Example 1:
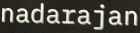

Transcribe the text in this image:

nadarajan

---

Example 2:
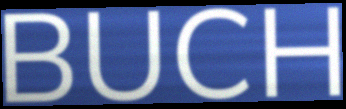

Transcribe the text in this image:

BUCH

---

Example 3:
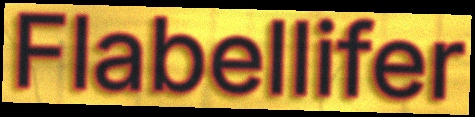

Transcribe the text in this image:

Flabellifer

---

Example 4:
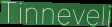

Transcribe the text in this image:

Tinneveli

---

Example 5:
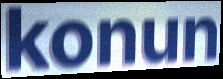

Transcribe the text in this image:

konun